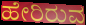
ಹೇರಿರುವ